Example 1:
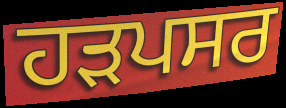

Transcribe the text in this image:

ਹੜਪਸਰ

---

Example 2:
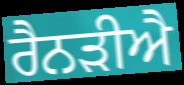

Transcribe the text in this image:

ਰੈਨੜੀਐ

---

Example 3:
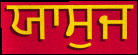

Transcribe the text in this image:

ਯਾਸੁਜ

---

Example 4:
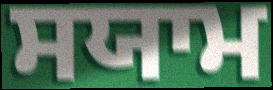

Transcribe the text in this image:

ਸਯਾਮ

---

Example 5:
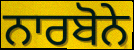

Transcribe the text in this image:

ਨਾਰਬੋਨੇ